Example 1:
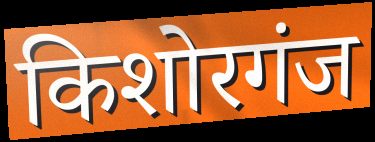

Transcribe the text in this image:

किशोरगंज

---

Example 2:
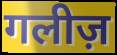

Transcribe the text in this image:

गलीज़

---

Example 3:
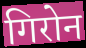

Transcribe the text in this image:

गिरोन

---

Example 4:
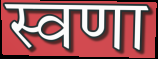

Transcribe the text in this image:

स्वणा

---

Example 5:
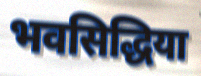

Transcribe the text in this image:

भवसिद्धिया